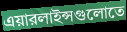
এয়ারলাইন্সগুলোতে